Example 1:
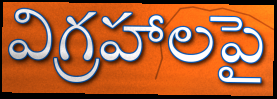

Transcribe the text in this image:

విగ్రహాలపై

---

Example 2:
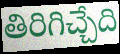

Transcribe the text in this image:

తిరిగిచ్చేది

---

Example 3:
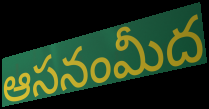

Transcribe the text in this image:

ఆసనంమీద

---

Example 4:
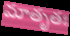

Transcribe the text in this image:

మాతృతః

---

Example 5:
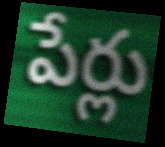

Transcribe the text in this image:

పేర్లు